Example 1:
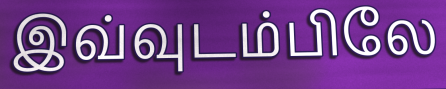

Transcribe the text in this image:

இவ்வுடம்பிலே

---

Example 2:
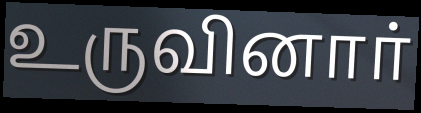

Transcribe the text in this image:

உருவினார்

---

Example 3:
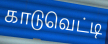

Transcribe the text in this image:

காடுவெட்டி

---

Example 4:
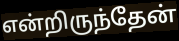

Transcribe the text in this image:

என்றிருந்தேன்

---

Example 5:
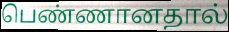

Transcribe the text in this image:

பெண்ணானதால்